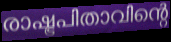
രാഷ്ട്രപിതാവിന്റെ